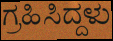
ಗ್ರಹಿಸಿದ್ದಳು